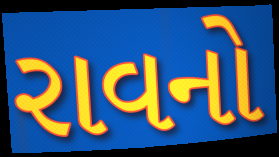
રાવનો